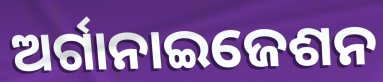
ଅର୍ଗାନାଇଜେଶନ